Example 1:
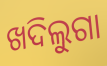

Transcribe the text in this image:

ଖଦିଲୁଗା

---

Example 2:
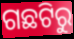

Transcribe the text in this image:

ଗଛଟିରୁ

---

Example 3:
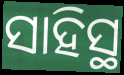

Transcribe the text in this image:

ସାହିସ୍ଥ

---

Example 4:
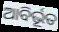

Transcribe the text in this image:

ଆବିର୍ଭୂତ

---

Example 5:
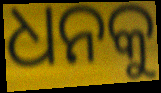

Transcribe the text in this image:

ଧନକୁ